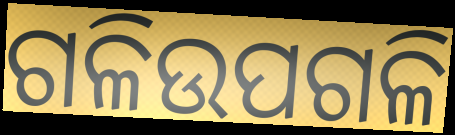
ଗଳିଉପଗଳି